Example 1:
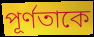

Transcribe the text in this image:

পূর্ণতাকে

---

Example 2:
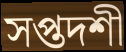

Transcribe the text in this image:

সপ্তদশী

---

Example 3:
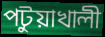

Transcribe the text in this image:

পটুয়াখালী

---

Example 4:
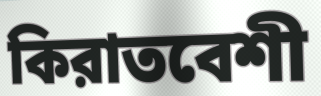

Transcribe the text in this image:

কিরাতবেশী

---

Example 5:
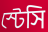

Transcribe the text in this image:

স্টেসি